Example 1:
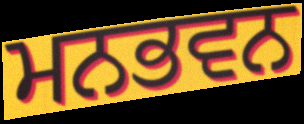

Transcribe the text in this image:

ਮਨਭਵਨ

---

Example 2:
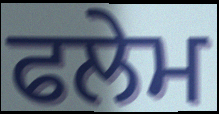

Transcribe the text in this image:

ਫਲੇਮ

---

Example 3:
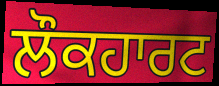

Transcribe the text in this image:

ਲੌਕਹਾਰਟ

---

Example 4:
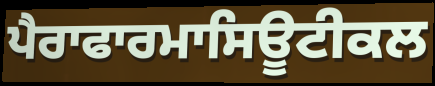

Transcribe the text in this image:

ਪੈਰਾਫਾਰਮਾਸਿਊਟੀਕਲ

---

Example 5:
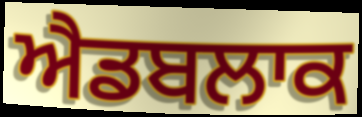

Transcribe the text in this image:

ਐਡਬਲਾਕ